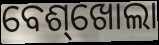
ବେଶ୍‌ଖୋଲା